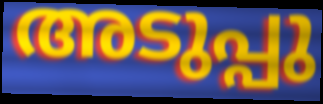
അടുപ്പു